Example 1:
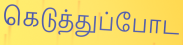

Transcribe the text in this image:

கெடுத்துப்போட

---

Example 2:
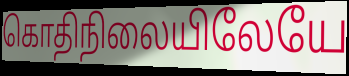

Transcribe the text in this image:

கொதிநிலையிலேயே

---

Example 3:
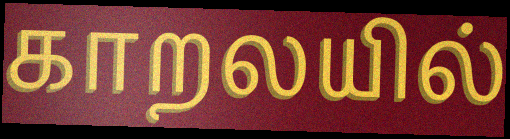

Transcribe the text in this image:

காறலயில்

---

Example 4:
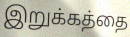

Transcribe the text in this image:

இறுக்கத்தை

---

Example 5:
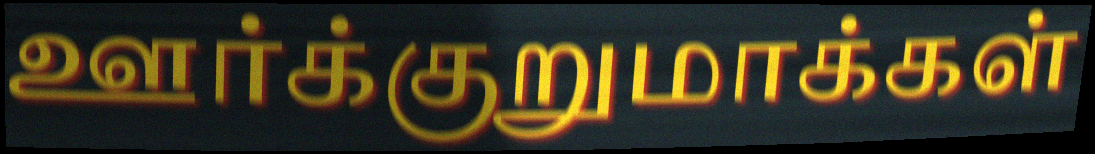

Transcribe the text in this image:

ஊர்க்குறுமாக்கள்